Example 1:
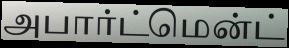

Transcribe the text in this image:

அபார்ட்மென்ட்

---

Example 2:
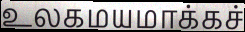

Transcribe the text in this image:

உலகமயமாக்கச்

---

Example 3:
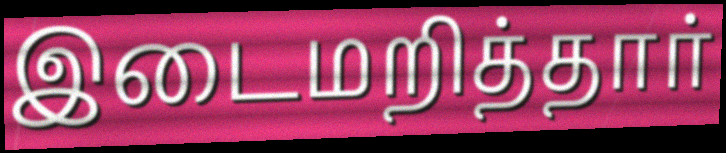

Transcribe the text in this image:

இடைமறித்தார்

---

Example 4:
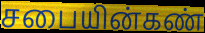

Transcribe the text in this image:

சபையின்கண்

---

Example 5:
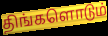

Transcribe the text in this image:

திங்களொடும்